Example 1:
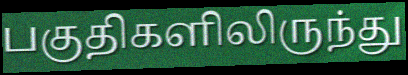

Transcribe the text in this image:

பகுதிகளிலிருந்து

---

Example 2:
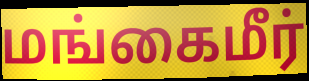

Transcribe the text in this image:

மங்கைமீர்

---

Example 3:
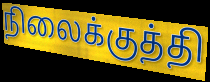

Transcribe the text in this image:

நிலைக்குத்தி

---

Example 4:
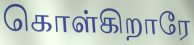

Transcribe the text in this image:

கொள்கிறாரே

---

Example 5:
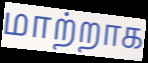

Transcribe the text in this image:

மாற்றாக